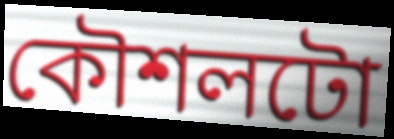
কৌশলটো